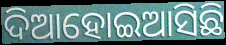
ଦିଆହୋଇଆସିଛି